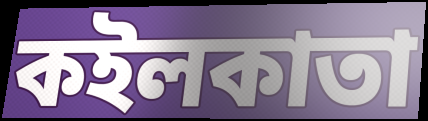
কইলকাতা